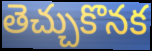
తెచ్చుకొనక